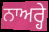
ਨਾਅਰ੍ਹੇ